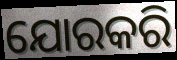
ଯୋରକରି